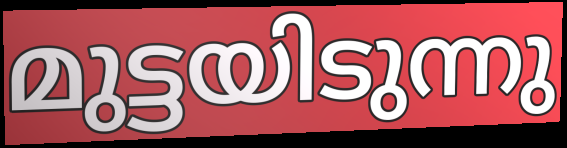
മുട്ടയിടുന്നു